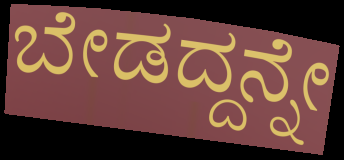
ಬೇಡದ್ದನ್ನೇ